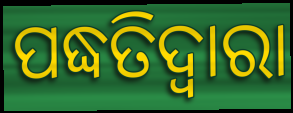
ପଦ୍ଧତିଦ୍ଵାରା